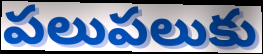
పలుపలుకు